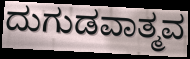
ದುಗುಡವಾತ್ಮವ